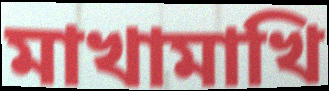
মাখামাখি